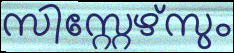
സിസ്റ്റേഴ്സും